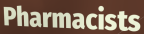
Pharmacists